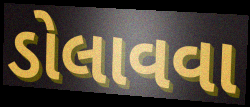
ડોલાવવા